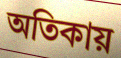
অতিকায়